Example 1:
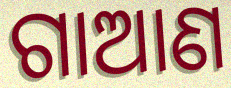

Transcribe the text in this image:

ଗାଆଣ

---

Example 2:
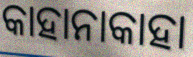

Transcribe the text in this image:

କାହାନାକାହା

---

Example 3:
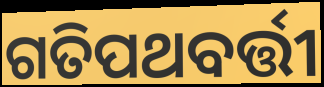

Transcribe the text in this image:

ଗତିପଥବର୍ତ୍ତୀ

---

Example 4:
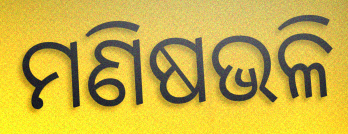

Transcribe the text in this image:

ମଣିଷଭଳି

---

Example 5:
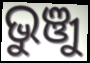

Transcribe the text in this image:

ଭୁଞ୍ଜୁ